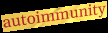
autoimmunity